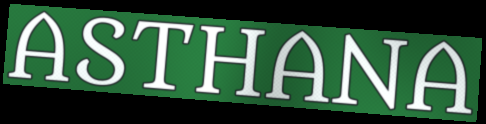
ASTHANA